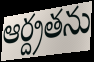
ఆర్ద్రతను